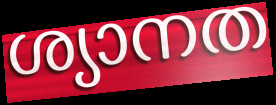
ശ്യാനത